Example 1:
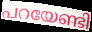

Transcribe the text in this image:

പറയേണ്ടി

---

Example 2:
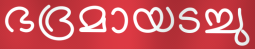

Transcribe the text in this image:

ഭദ്രമായടച്ചു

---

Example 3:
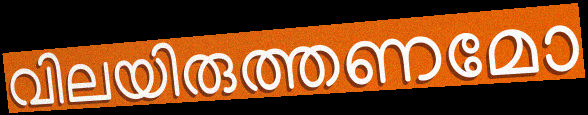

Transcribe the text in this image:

വിലയിരുത്തണമോ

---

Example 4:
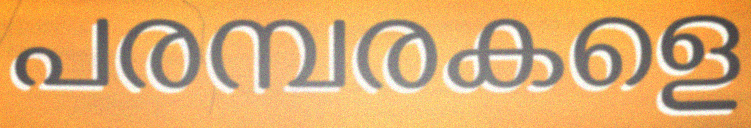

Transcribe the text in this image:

പരമ്പരകളെ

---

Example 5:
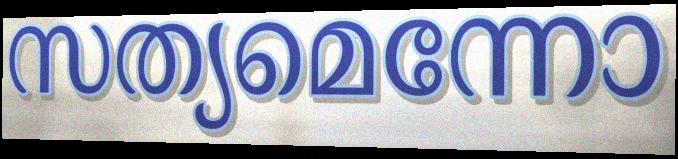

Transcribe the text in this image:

സത്യമെന്നോ